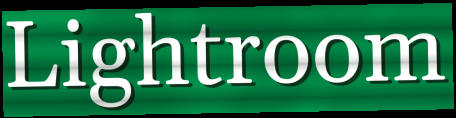
Lightroom